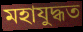
মহাযুদ্ধত